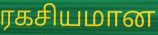
ரகசியமான